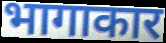
भागाकार